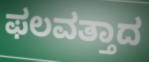
ಫಲವತ್ತಾದ